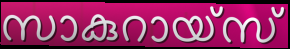
സാകുറായ്സ്